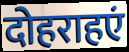
दोहराहएं